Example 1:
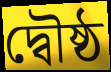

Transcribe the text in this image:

দ্বৌষ্ঠ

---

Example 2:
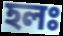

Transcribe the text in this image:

হলঃ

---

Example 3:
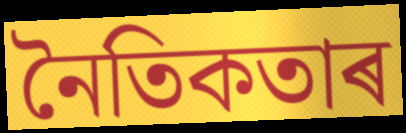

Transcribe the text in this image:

নৈতিকতাৰ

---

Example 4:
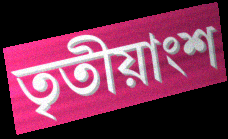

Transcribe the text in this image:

তৃতীয়াংশ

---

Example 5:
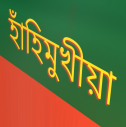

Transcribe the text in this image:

হাঁহিমুখীয়া